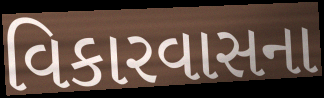
વિકારવાસના